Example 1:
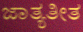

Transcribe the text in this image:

ಜಾತ್ಯತೀತ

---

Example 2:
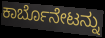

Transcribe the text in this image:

ಕಾರ್ಬೊನೇಟನ್ನು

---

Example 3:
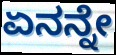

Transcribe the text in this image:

ಏನನ್ನೇ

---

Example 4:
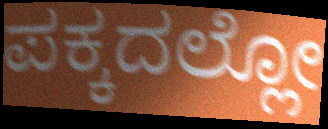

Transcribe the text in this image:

ಪಕ್ಕದಲ್ಲೋ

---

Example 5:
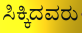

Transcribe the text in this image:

ಸಿಕ್ಕಿದವರು